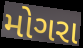
મોગરા